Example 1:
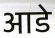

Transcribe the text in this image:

आडे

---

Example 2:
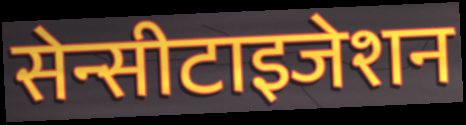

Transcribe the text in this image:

सेन्सीटाइजेशन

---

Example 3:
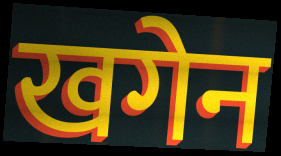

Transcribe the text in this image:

खगेन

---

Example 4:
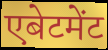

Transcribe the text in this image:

एबेटमेंट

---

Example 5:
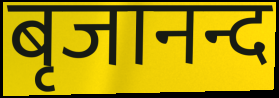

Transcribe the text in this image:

बृजानन्द